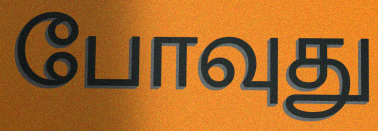
போவுது